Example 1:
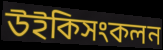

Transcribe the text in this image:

উইকিসংকলন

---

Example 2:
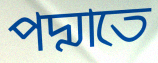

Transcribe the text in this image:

পদ্মাতে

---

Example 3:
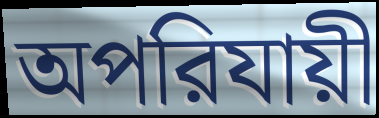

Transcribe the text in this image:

অপরিযায়ী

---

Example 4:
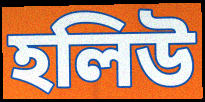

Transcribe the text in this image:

হলিউ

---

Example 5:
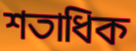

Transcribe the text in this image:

শতাধিক